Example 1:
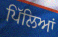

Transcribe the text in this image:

ਪਿੱਲਿਆਂ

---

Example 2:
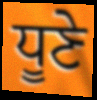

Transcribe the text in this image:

ਧੂਣੇ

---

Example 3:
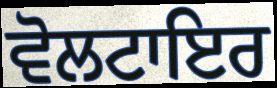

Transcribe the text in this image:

ਵੋਲਟਾਇਰ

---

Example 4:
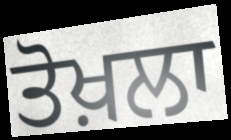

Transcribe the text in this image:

ਤੋਖ਼ਲਾ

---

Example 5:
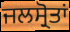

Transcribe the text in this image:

ਜਲਸ੍ਰੋਤਾਂ